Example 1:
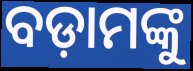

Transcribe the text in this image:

ବଡ଼ାମଙ୍କୁ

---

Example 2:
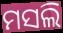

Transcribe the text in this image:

ମସଲି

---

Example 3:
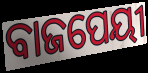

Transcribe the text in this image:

ବାଜପେୟୀ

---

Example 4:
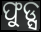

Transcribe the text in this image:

ଫୁଡ୍ସ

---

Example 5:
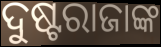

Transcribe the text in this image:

ଦୁଷ୍ଟରାଜାଙ୍କ